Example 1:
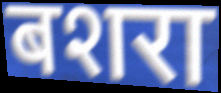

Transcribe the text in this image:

बशरा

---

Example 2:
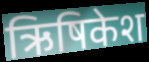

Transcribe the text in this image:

ऋिषिकेश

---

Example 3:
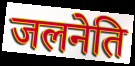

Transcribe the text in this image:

जलनेति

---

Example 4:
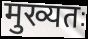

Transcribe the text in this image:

मुख्यतः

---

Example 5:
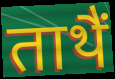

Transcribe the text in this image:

ताथैं